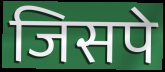
जिसपे